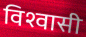
विश्वासी